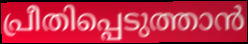
പ്രീതിപ്പെടുത്താൻ